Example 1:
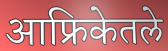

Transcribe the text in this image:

आफ्रिकेतले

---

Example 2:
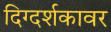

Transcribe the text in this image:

दिग्दर्शकावर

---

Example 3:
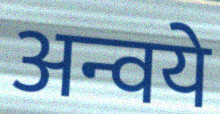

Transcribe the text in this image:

अन्‍वये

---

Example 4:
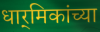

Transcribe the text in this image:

धार्मिकांच्या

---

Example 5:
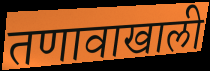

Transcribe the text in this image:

तणावाखाली